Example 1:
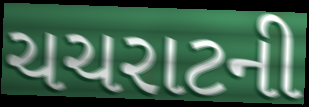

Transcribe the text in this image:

ચચરાટની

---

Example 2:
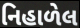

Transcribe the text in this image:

નિહાળેલ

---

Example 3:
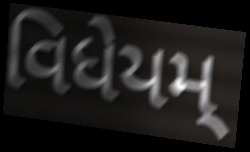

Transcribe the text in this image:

વિધેયમ્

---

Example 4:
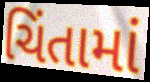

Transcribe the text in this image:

ચિંતામાં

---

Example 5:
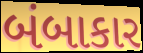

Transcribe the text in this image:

બંબાકાર